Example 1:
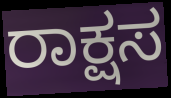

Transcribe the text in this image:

ರಾಕ್ಷಸ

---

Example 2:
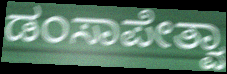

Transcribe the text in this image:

ಡಂಸಾಪೇತ್ವಾ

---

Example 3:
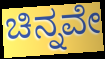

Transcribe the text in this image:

ಚಿನ್ನವೇ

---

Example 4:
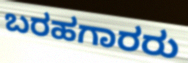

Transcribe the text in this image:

ಬರಹಗಾರರು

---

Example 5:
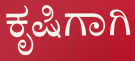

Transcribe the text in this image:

ಕೃಷಿಗಾಗಿ